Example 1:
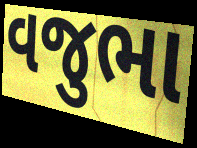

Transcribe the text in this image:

વજુભા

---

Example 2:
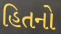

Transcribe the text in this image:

હિતનો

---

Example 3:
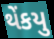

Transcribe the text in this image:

થેંકયુ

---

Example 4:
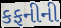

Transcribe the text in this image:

કફનીની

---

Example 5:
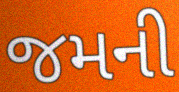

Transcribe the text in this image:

જમની